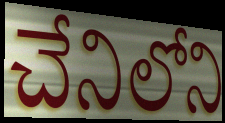
చేనిలోని